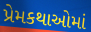
પ્રેમકથાઓમાં